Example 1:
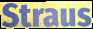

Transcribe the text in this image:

Straus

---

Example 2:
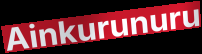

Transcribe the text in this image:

Ainkurunuru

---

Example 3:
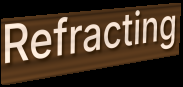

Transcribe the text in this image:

Refracting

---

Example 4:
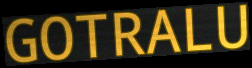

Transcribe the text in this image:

GOTRALU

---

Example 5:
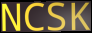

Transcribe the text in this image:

NCSK